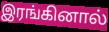
இரங்கினால்